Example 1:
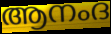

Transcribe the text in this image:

ആനംദ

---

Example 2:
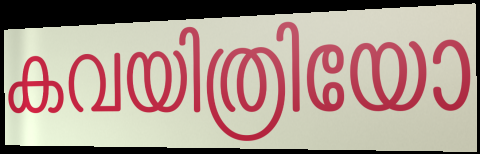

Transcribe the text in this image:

കവയിത്രിയോ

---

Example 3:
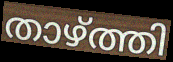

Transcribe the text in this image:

താഴ്ത്തി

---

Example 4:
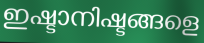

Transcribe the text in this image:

ഇഷ്ടാനിഷ്ടങ്ങളെ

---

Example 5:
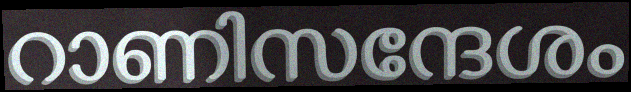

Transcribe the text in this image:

റാണിസന്ദേശം